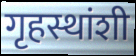
गृहस्थांशी